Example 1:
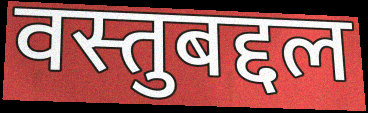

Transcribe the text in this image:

वस्तुबद्दल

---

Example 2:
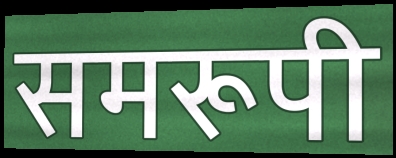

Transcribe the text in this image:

समरूपी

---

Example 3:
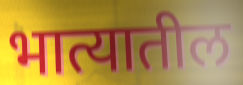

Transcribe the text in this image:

भात्यातील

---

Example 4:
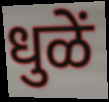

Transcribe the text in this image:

धुळें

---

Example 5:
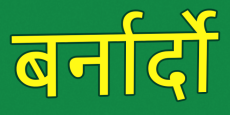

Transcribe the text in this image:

बर्नार्दो